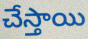
చేస్తాయి